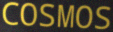
COSMOS